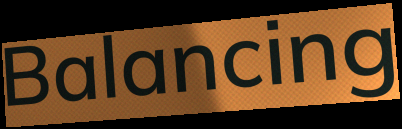
Balancing